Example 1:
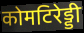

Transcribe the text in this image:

कोमटिरेड्डी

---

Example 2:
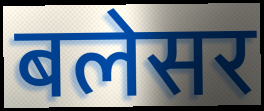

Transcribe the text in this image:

बलेसर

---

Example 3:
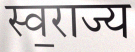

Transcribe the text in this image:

स्व॒राज्य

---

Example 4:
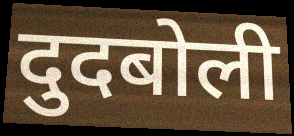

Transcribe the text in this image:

दुदबोली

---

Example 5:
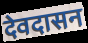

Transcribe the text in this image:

देवदासन